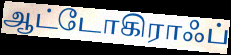
ஆட்டோகிராஃப்